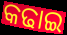
କଢାଇ